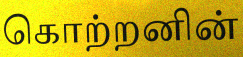
கொற்றனின்